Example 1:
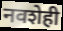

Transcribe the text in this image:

नवशेही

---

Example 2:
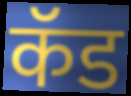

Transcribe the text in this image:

कॅड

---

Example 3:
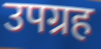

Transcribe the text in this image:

उपग्रह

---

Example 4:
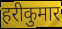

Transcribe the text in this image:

हरीकुमार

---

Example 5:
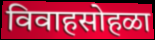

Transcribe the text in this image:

विवाहसोहळा